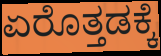
ಏರೊತ್ತಡಕ್ಕೆ